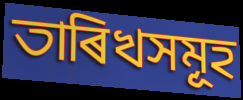
তাৰিখসমূহ